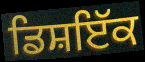
ਡਿਸ਼ਇੱਕ